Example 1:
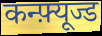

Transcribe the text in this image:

कन्फ़्यूज्ड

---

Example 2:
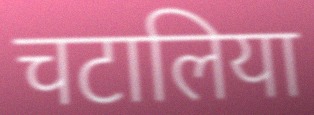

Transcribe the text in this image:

चटालिया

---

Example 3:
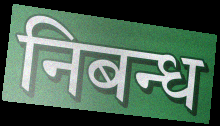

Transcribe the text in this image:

निबन्‍ध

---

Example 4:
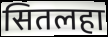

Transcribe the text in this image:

सितलहा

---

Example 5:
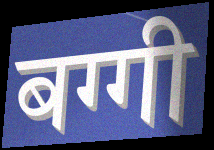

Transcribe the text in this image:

बग्‍गी